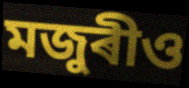
মজুৰীও